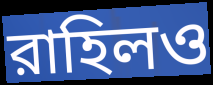
রাহিলও